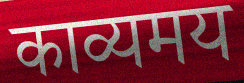
काव्यमय